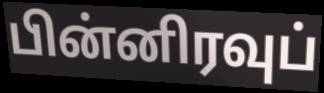
பின்னிரவுப்